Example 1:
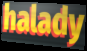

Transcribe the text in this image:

halady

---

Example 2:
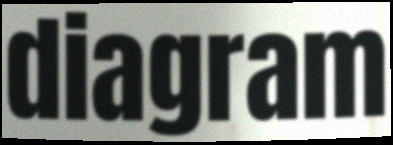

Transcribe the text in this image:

diagram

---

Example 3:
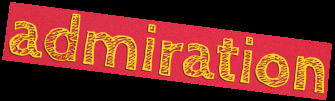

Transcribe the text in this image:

admiration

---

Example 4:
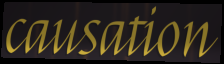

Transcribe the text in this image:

causation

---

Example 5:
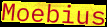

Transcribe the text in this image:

Moebius